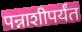
पन्नाशीपर्यंत